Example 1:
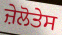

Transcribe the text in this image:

ਜ਼ੇਲੋਤੇਸ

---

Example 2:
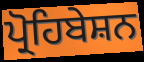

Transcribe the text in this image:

ਪ੍ਰੋਹਿਬੇਸ਼ਨ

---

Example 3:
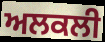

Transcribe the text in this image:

ਅਲਕਲੀ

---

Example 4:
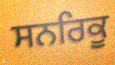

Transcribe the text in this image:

ਸਨਰਿਕੂ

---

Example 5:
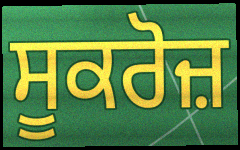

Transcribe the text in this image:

ਸੂਕਰੋਜ਼